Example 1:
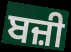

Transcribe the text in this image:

ਬਜ਼ੀ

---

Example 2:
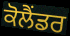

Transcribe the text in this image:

ਕੋਲੈਂਡਰ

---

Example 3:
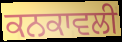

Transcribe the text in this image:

ਕਨਕਾਵਲੀ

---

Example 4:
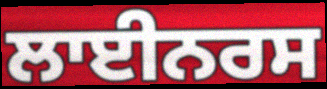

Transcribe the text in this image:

ਲਾਈਨਰਸ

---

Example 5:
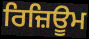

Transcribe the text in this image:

ਰਿਜ਼ਿਊਮ